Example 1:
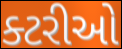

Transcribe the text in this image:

ક્ટરીઓ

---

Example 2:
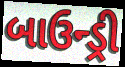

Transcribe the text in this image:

બાઉન્ડ્રી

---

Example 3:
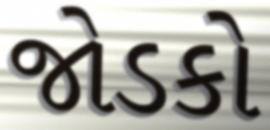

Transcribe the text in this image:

જોડકો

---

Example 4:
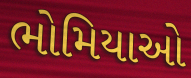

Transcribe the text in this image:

ભોમિયાઓ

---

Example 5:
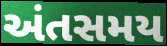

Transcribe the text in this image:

અંતસમય